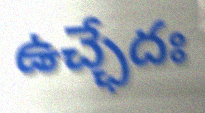
ఉచ్ఛేదః